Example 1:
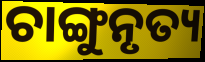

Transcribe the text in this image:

ଚାଙ୍ଗୁନୃତ୍ୟ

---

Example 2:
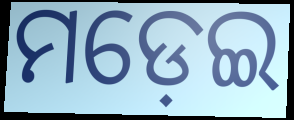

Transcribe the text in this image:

ମଡ଼େଇ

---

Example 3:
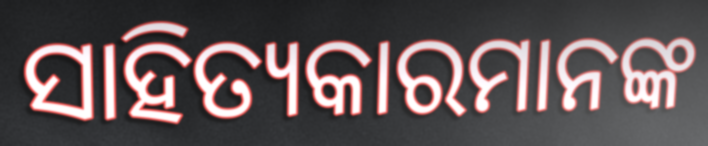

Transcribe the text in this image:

ସାହିତ୍ୟକାରମାନଙ୍କ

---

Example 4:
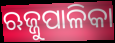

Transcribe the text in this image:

ଋଜ୍ଜୁପାଳିକା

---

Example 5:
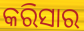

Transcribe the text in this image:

କରିସାର